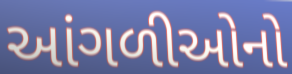
આંગળીઓનો